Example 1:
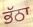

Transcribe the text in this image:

ਭੱਠਾ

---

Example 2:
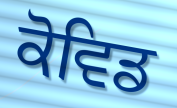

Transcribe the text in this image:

ਕੋਵਿਡ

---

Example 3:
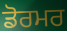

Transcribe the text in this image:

ਡੋਰਮਰ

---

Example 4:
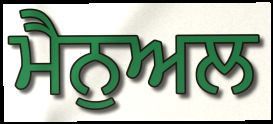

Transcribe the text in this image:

ਮੈਨੁਅਲ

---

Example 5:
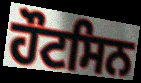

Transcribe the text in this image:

ਹੌਟਸਿਨ